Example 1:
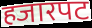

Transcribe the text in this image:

हजारपट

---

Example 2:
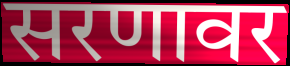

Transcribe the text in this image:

सरणावर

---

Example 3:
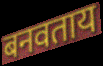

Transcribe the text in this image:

बनवताय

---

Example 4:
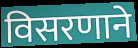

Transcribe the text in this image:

विसरणाने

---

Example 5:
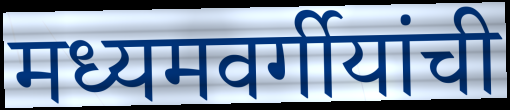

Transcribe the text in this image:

मध्यमवर्गीयांची